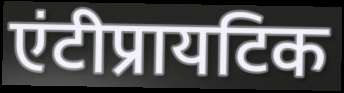
एंटीप्रायटिक